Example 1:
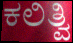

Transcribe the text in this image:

ಕಲಿತ್ವಿ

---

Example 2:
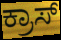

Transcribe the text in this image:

ಕ್ರಾಸ್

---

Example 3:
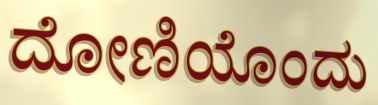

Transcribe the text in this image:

ದೋಣಿಯೊಂದು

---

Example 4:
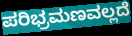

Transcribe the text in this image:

ಪರಿಭ್ರಮಣವಲ್ಲದೆ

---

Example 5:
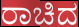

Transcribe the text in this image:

ರಾಚಿದ